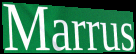
Marrus